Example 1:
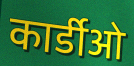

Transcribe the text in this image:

कार्डीओ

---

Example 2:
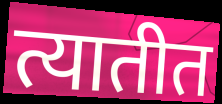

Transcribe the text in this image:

त्यातीत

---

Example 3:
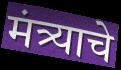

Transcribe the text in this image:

मंत्र्याचे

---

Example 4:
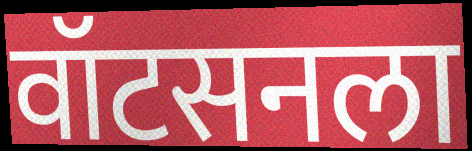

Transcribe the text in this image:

वॉटसनला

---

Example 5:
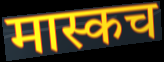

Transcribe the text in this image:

मास्कच